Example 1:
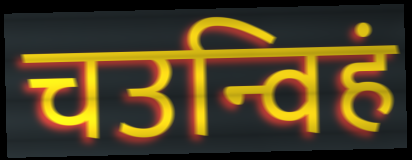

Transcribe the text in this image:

चउन्विहं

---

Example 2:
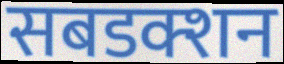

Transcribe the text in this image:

सबडक्शन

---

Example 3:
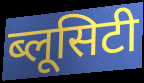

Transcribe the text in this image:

ब्लूसिटी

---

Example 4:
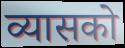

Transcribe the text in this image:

व्यासको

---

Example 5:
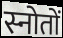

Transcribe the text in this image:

स्नोतों